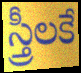
స్త్రీలకే